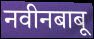
नवीनबाबू